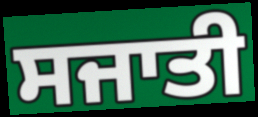
ਸਜਾਤੀ